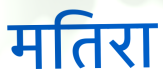
मतिरा